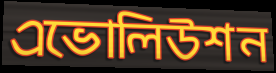
এভোলিউশন